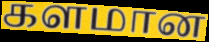
களமான